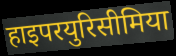
हाइपरयुरिसीमिया